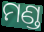
ମଣ୍ଡ